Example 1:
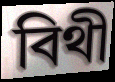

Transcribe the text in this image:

বিথী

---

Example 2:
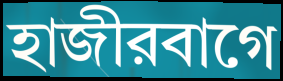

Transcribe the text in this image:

হাজীরবাগে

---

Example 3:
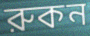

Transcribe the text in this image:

রুকন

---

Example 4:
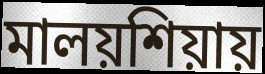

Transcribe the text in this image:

মালয়শিয়ায়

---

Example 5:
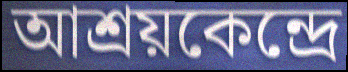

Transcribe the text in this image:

আশ্রয়কেন্দ্রে